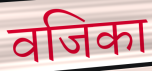
वजिका